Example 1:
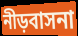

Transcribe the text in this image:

নীড়বাসনা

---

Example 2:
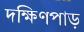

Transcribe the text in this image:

দক্ষিণপাড়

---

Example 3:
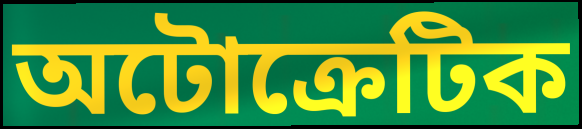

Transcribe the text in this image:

অটোক্রেটিক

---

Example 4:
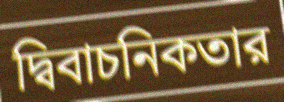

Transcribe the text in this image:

দ্বিবাচনিকতার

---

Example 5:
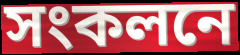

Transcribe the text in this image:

সংকলনে